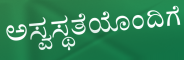
ಅಸ್ವಸ್ಥತೆಯೊಂದಿಗೆ